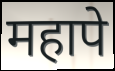
महापे